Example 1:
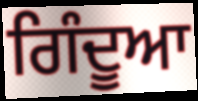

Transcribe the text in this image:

ਗਿੰਦੂਆ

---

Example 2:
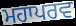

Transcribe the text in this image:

ਮਹਾਪਰਵ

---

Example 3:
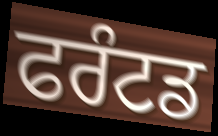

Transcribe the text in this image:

ਫਰੰਟਡ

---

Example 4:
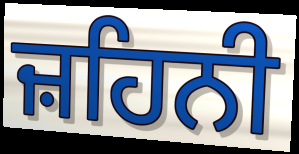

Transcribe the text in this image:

ਜ਼ਹਿਨੀ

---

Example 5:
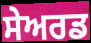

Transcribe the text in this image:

ਸੇਅਰਡ